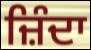
ਜ਼ਿੰਦਾ